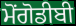
ਮੋਂਗੋਡੀਬੀ